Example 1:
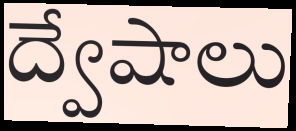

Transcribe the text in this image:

ద్వేషాలు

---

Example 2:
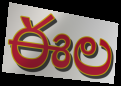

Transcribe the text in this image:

ఈల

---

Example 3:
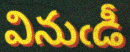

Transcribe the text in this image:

వినుఁడీ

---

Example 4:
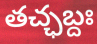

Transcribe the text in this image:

తచ్ఛబ్దః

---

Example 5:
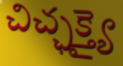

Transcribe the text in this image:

చిచ్ఛక్త్యై